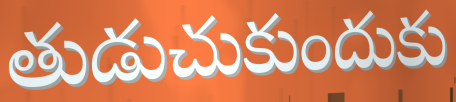
తుడుచుకుందుకు